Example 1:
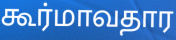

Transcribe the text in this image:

கூர்மாவதார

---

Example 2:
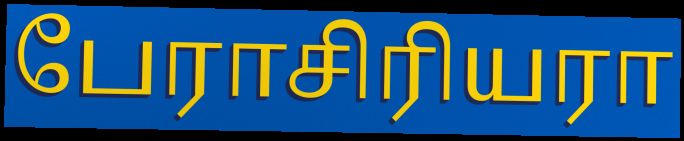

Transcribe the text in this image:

பேராசிரியரா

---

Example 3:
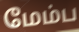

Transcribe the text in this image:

மேம்ப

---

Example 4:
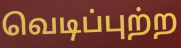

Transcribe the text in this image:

வெடிப்புற்ற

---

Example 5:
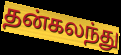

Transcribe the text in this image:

தன்கலந்து